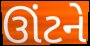
ઊંટને